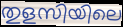
തുളസിയിലെ